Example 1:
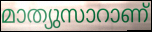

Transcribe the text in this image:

മാത്യുസാറാണ്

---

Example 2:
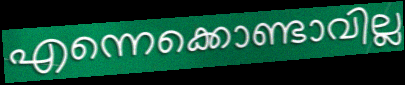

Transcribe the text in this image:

എന്നെക്കൊണ്ടാവില്ല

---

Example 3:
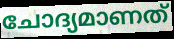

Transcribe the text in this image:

ചോദ്യമാണത്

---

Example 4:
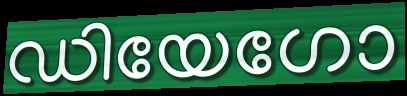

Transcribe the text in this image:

ഡിയേഗോ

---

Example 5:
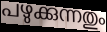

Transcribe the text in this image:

പഴുക്കുന്നതും